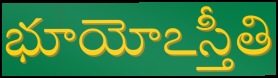
భూయోఽస్తీతి